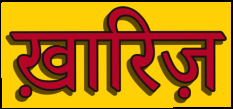
ख़ारिज़